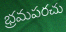
భ్రమపరచు